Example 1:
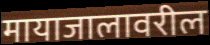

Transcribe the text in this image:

मायाजालावरील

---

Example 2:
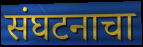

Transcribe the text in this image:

संघटनाचा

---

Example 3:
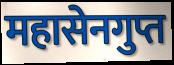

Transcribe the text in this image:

महासेनगुप्त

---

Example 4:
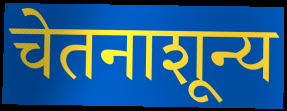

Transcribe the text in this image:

चेतनाशून्य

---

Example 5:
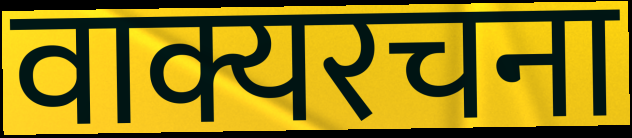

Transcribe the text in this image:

वाक्यरचना